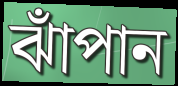
ঝাঁপান